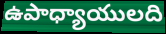
ఉపాధ్యాయులది